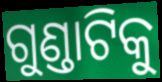
ଗୁଣ୍ଡାଟିକୁ